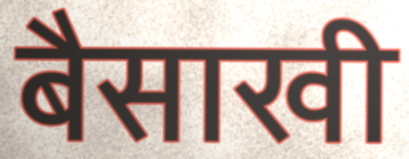
बैसाखी